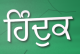
ਹਿੰਦੁਕ